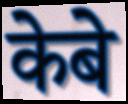
केबे